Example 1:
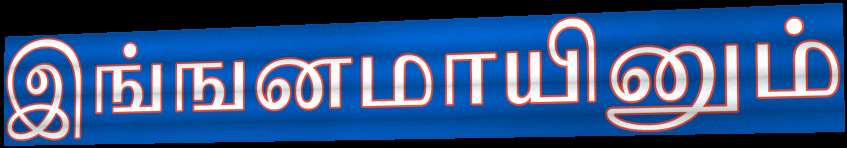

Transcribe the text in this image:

இங்ஙனமாயினும்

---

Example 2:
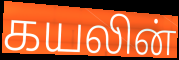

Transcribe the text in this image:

கயலின்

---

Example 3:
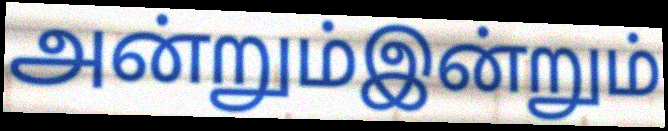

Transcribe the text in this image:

அன்றும்இன்றும்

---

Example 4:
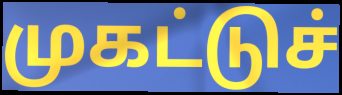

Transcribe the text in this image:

முகட்டுச்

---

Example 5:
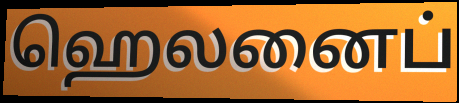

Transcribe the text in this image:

ஹெலனைப்